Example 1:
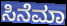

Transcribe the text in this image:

ಸಿನೆಮಾ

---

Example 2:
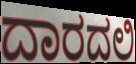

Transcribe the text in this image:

ದಾರದಲಿ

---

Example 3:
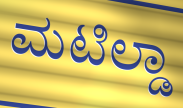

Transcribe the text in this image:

ಮಟಿಲ್ಡಾ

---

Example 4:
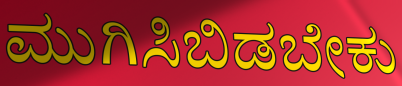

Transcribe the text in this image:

ಮುಗಿಸಿಬಿಡಬೇಕು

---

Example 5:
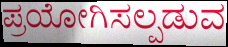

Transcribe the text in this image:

ಪ್ರಯೋಗಿಸಲ್ಪಡುವ